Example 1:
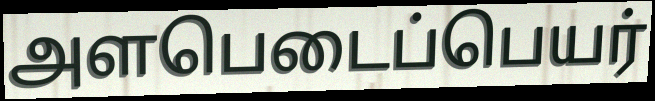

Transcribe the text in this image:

அளபெடைப்பெயர்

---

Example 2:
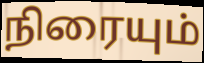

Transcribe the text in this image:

நிரையும்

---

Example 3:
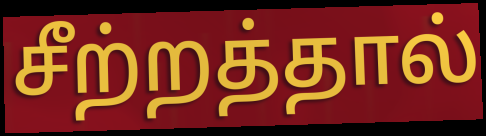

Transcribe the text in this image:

சீற்றத்தால்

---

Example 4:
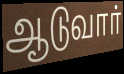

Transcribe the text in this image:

ஆடுவார்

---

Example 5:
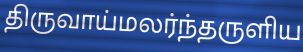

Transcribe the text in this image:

திருவாய்மலர்ந்தருளிய